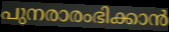
പുനരാരംഭിക്കാൻ